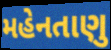
મહેનતાણુ